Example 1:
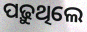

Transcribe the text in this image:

ପଢ଼ୁଥିଲେ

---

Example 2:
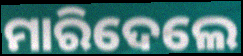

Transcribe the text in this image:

ମାରିଦେଲେ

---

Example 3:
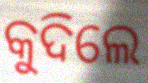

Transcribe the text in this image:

କୁଦିଲେ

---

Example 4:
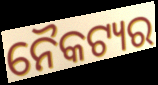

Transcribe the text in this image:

ନୈକଟ୍ୟର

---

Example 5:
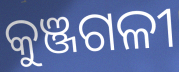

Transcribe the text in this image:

କୁଞ୍ଜଗଳୀ